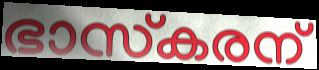
ഭാസ്‌കരന്